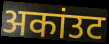
अकांउट